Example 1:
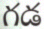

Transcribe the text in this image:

గడ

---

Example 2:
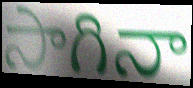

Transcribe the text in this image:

సాగినా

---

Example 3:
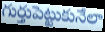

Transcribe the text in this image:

గుర్తుపెట్టుకునేలా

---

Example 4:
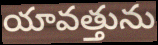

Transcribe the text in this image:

యావత్తును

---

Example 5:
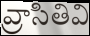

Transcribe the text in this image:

వ్రాసితివి